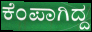
ಕೆಂಪಾಗಿದ್ದ